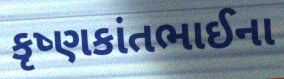
કૃષ્ણકાંતભાઈના